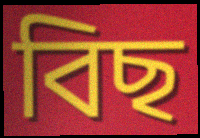
বিছ